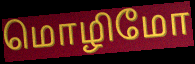
மொழிமோ